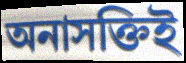
অনাসক্তিই